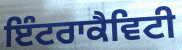
ਇੰਟਰਾਕੈਵਿਟੀ